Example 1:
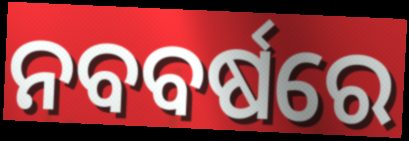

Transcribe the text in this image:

ନବବର୍ଷରେ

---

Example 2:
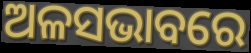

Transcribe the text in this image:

ଅଳସଭାବରେ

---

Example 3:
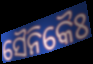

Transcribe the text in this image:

ସୈନିକୈଃ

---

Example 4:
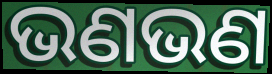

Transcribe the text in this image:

ଭଣଭଣ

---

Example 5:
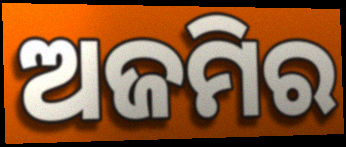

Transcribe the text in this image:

ଅଜମିର